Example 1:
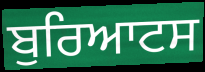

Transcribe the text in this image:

ਬੁਰਿਆਟਸ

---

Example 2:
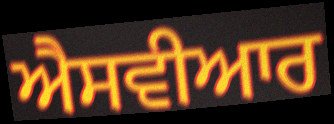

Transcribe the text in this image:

ਐਸਵੀਆਰ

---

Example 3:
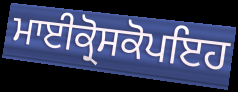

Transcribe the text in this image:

ਮਾਈਕ੍ਰੋਸਕੋਪਇਹ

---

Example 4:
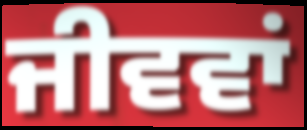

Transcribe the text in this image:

ਜੀਵਵਾਂ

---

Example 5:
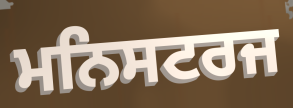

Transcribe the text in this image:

ਮਨਿਸਟਰਜ